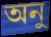
অনু